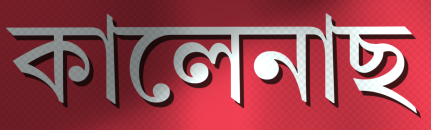
কালেনাছ